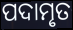
ପଦାମୃତ